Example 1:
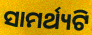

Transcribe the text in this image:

ସାମର୍ଥ୍ୟଟି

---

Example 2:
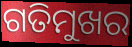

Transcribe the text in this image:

ଗତିମୁଖର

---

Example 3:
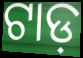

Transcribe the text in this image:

ଟାଡ଼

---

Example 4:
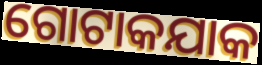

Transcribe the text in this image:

ଗୋଟାକଯାକ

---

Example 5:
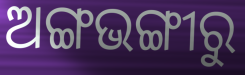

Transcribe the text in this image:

ଅଙ୍ଗଭଙ୍ଗୀରୁ